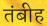
तंबीह